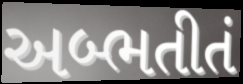
અબ્ભતીતં